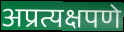
अप्रत्यक्षपणे